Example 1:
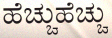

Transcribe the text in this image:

ಹೆಚ್ಚುಹೆಚ್ಚು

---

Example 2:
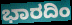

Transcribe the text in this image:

ಭಾರದಿಂ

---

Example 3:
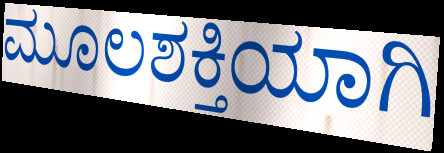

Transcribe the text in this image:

ಮೂಲಶಕ್ತಿಯಾಗಿ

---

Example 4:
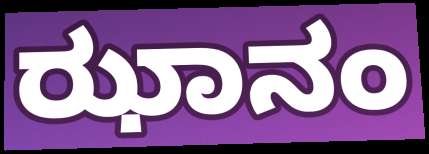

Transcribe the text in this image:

ಝಾನಂ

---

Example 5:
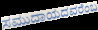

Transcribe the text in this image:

ಸಮುದಾಯದವರೆಂಬ